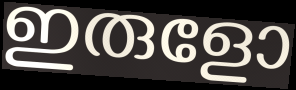
ഇരുളോ